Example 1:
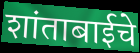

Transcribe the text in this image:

शांताबाईचे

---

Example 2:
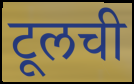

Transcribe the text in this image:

टूलची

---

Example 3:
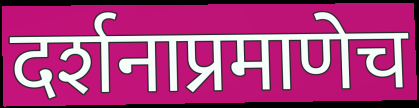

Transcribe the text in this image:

दर्शनाप्रमाणेच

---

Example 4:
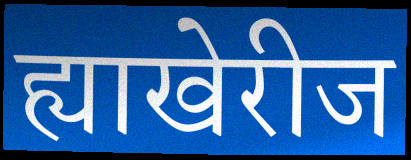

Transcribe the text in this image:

ह्याखेरीज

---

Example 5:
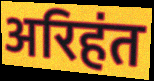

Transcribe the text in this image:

अरिहंत